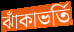
ঝাঁকাভর্তি